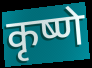
कृष्णे